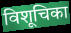
विशूचिका